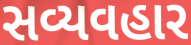
સવ્યવહાર